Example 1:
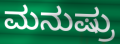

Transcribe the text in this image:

ಮನುಷ್ರು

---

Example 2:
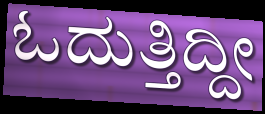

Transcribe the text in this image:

ಓದುತ್ತಿದ್ದೀ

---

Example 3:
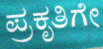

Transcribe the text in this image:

ಪ್ರಕೃತಿಗೇ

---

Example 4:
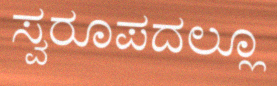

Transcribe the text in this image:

ಸ್ವರೂಪದಲ್ಲೂ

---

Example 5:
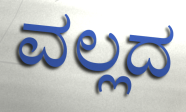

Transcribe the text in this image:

ವಲ್ಲದ